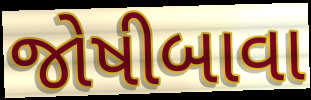
જોષીબાવા